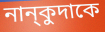
নান্‌কুদাকে